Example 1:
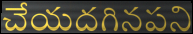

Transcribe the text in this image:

చేయదగినపని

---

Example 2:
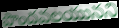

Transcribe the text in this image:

పొందవలయునని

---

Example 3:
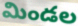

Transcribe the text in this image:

మిండల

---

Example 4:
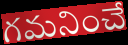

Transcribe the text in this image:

గమనించే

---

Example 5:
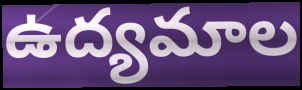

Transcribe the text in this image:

ఉద్యమాల